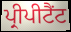
ਪ੍ਰੀਪੀਟੈਂਟ